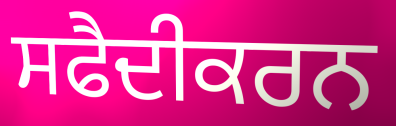
ਸਫੈਦੀਕਰਨ